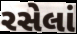
રસેલાં